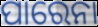
ପାରେନା